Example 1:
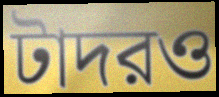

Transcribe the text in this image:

টাদরও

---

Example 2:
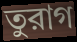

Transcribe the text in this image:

তুরাগ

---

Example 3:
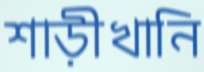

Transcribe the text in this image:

শাড়ীখানি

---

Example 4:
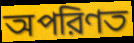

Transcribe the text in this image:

অপরিণত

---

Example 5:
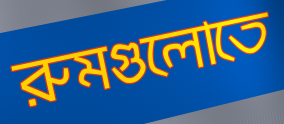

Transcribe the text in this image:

রুমগুলোতে